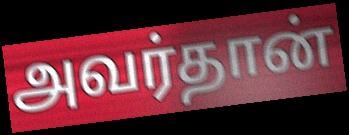
அவர்தான்